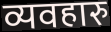
व्यवहारु